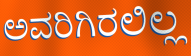
ಅವರಿಗಿರಲಿಲ್ಲ